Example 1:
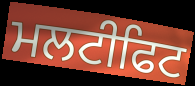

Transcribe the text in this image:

ਮਲਟੀਫਿਟ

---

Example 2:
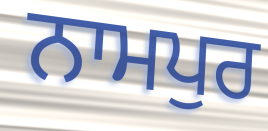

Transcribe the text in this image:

ਨਾਮਪੁਰ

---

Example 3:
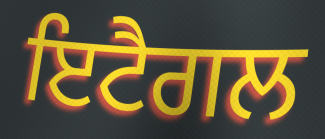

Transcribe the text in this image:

ਇਟੈਗਲ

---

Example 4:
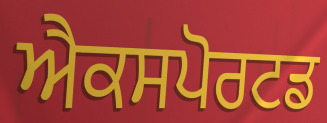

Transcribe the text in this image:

ਐਕਸਪੋਰਟਡ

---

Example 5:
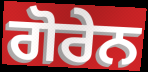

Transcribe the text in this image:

ਗੋਰੇਨ